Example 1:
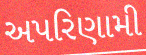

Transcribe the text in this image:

અપરિણામી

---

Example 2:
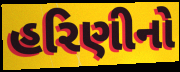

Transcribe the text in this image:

હરિણીનો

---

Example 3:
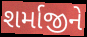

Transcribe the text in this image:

શર્માજીને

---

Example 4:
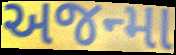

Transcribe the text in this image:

અજન્મા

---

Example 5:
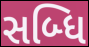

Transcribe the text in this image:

સબ્ધિ